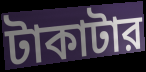
টাকাটার